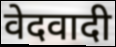
वेदवादी